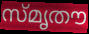
സ്മൃതൗ